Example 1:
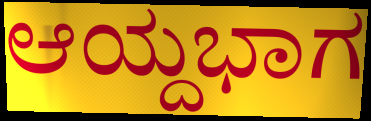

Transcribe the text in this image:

ಆಯ್ದಭಾಗ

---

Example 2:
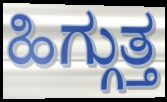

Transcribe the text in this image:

ಹಿಗ್ಗುತ್ತ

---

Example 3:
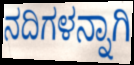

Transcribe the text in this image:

ನದಿಗಳನ್ನಾಗಿ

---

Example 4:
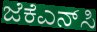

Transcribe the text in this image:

ಜೆಕೆಎನ್‌ಸಿ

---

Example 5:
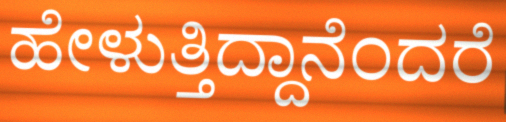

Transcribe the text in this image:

ಹೇಳುತ್ತಿದ್ದಾನೆಂದರೆ